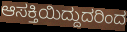
ಆಸಕ್ತಿಯಿದ್ದುದರಿಂದ